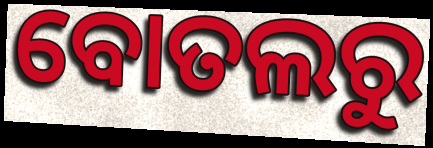
ବୋତଲରୁ